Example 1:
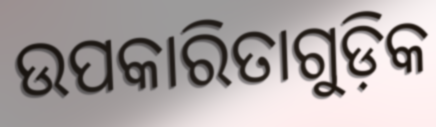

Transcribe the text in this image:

ଉପକାରିତାଗୁଡ଼ିକ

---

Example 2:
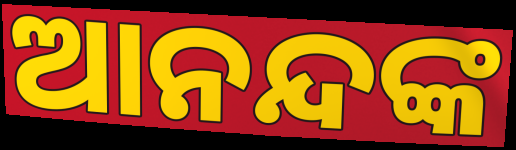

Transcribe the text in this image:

ଆନନ୍ଦଙ୍କ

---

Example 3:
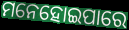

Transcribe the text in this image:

ମନେହୋଇପାରେ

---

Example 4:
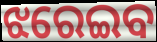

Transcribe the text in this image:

ଝରେଇବ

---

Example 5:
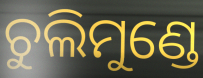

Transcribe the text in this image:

ଚୁଲିମୁଣ୍ଡେ